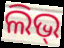
ଲିଭ୍